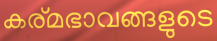
കര്മഭാവങ്ങളുടെ